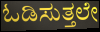
ಓಡಿಸುತ್ತಲೇ